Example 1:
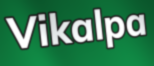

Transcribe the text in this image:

Vikalpa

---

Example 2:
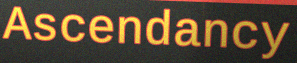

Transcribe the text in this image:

Ascendancy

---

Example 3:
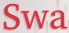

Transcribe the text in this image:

Swa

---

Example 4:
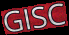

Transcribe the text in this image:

GISC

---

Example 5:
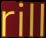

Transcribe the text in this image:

rill